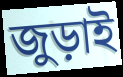
জুড়াই